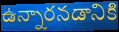
ఉన్నారనడానికి